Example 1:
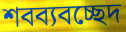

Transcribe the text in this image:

শবব্যবচ্ছেদ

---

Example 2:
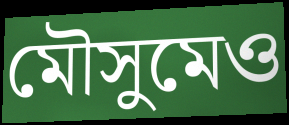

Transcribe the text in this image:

মৌসুমেও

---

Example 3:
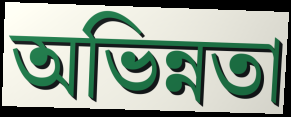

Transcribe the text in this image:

অভিন্নতা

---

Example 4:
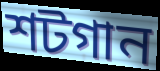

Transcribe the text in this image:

শটগান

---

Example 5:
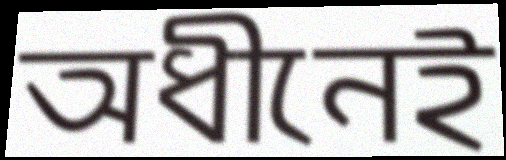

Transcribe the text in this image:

অধীনেই